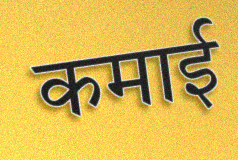
कमाई